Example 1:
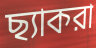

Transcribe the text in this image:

ছ্যাকরা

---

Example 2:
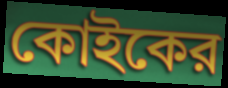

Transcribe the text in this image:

কোইকের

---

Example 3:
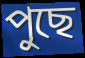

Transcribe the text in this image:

পুছে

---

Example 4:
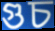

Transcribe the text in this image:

গুচ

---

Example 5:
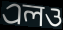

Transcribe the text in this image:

এলও